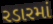
રડારમાં